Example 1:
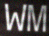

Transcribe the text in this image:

WM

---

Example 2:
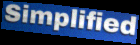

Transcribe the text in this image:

Simplified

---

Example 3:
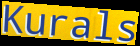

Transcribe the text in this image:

Kurals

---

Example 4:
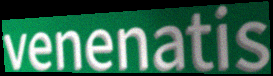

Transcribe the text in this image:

venenatis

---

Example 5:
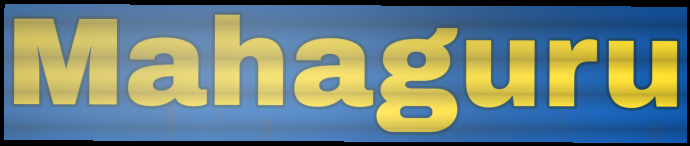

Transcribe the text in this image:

Mahaguru